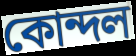
কোন্দল